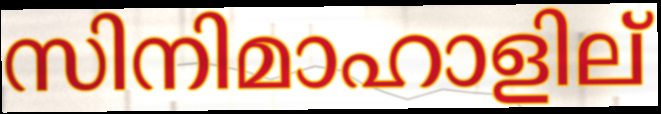
സിനിമാഹാളില്